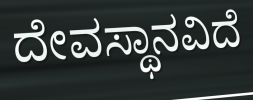
ದೇವಸ್ಥಾನವಿದೆ